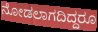
ನೋಡಲಾಗದಿದ್ದರೂ